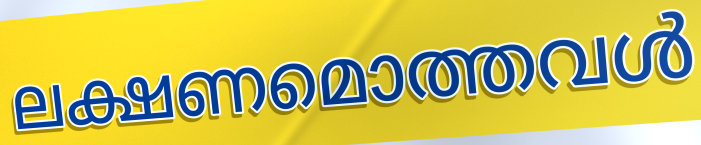
ലക്ഷണമൊത്തവൾ